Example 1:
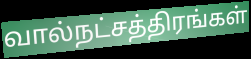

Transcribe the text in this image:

வால்நட்சத்திரங்கள்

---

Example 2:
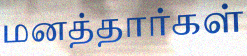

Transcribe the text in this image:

மனத்தார்கள்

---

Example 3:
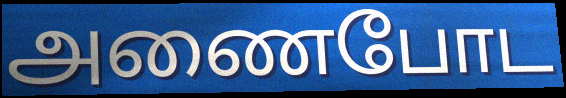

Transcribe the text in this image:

அணைபோட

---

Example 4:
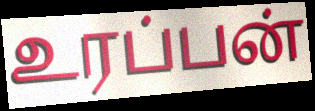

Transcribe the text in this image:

உரப்பன்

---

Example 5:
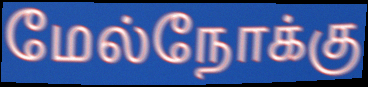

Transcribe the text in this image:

மேல்நோக்கு